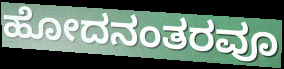
ಹೋದನಂತರವೂ